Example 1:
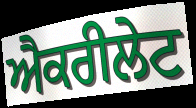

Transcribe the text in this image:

ਐਕਰੀਲੇਟ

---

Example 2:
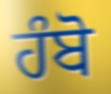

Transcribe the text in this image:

ਹੰਬੋ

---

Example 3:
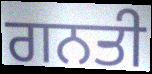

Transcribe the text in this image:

ਗਨਤੀ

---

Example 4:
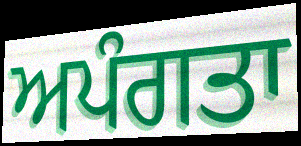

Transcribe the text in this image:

ਅਪੰਗਤਾ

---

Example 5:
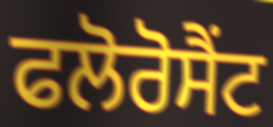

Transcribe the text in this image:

ਫਲੋਰੋਸੈਂਟ